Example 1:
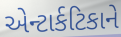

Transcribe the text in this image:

એન્ટાર્કટિકાને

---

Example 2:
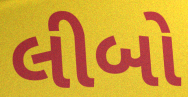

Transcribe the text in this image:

લીબો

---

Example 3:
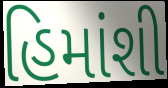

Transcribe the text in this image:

હિમાંશી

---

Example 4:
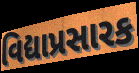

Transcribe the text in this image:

વિદ્યાપ્રસારક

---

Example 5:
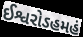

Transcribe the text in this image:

ઈશ્વરોઽહમહં